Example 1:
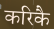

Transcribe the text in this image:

करिकै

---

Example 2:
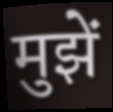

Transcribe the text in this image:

मुझें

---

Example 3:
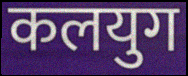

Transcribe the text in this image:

कलयुग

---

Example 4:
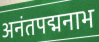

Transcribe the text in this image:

अनंतपद्मनाभ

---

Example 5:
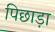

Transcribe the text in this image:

पिछाड़ा